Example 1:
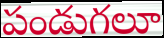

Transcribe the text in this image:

పండుగలూ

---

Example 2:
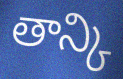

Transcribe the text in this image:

తాన్కి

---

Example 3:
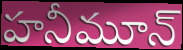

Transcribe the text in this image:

హనీమూన్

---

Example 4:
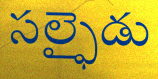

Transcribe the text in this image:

సల్ఫైడు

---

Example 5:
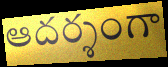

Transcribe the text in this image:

ఆదర్శంగా